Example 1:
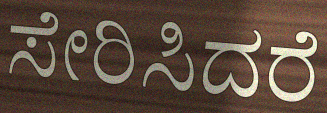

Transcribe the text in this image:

ಸೇರಿಸಿದರೆ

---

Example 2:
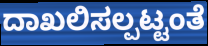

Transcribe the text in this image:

ದಾಖಲಿಸಲ್ಪಟ್ಟಂತೆ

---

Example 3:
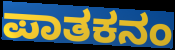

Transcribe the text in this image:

ಪಾತಕನಂ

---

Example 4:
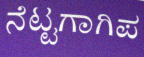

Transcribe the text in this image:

ನೆಟ್ಟಗಾಗಿಪ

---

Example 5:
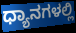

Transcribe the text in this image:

ಧ್ಯಾನಗಳಲ್ಲಿ